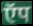
ऍप